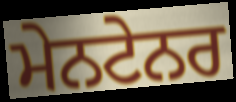
ਮੇਨਟੇਨਰ